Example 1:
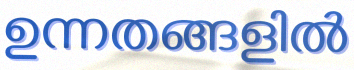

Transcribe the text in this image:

ഉന്നതങ്ങളിൽ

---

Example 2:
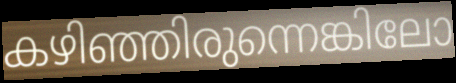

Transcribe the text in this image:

കഴിഞ്ഞിരുന്നെങ്കിലോ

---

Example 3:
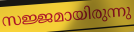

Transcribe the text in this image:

സജ്ജമായിരുന്നു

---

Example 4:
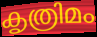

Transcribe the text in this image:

കൃത്രിമം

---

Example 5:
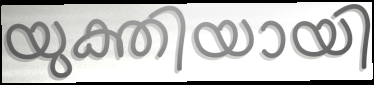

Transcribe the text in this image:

യുക്തിയായി